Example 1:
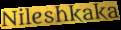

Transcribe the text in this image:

Nileshkaka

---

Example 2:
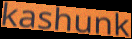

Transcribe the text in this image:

kashunk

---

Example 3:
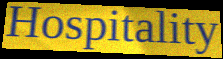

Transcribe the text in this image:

Hospitality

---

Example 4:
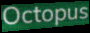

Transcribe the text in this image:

Octopus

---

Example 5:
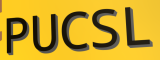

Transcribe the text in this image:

PUCSL